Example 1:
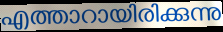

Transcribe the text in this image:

എത്താറായിരിക്കുന്നു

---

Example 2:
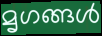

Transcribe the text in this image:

മൃഗങ്ങൾ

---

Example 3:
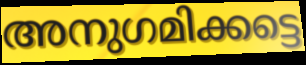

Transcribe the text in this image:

അനുഗമിക്കട്ടെ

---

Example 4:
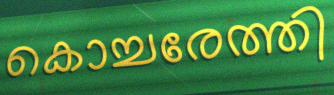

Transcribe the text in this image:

കൊച്ചരേത്തി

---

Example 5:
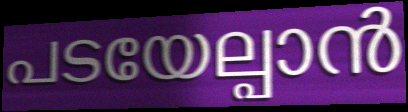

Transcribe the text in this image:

പടയേല്പാൻ